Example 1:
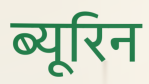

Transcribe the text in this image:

ब्यूरिन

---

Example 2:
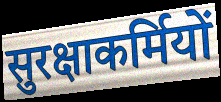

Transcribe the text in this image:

सुरक्षाकर्मियों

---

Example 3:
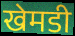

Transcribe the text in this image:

खेमडी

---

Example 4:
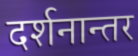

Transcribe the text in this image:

दर्शनान्तर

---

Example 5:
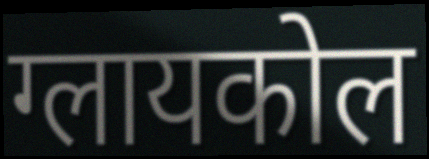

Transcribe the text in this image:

ग्लायकोल